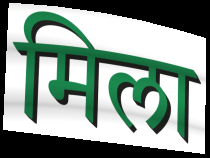
मिला